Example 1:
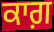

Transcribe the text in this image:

ਕਾਗ਼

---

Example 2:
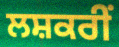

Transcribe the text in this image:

ਲਸ਼ਕਰੀਂ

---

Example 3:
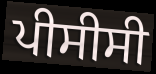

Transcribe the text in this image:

ਪੀਸੀਸੀ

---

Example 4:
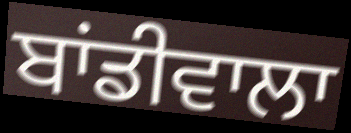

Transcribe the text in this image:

ਬਾਂਡੀਵਾਲਾ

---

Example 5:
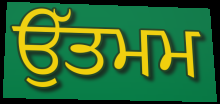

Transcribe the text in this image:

ਉੱਤਮਮ